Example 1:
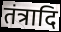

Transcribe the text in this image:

तंत्रादि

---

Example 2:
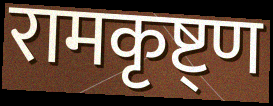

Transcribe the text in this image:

रामकृष्ट्ण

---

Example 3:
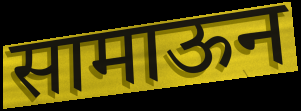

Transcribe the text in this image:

सामाऊन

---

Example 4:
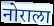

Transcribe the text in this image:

नोराला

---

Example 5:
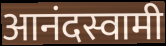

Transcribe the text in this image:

आनंदस्वामी